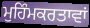
ਮੁਹਿੰਮਕਰਤਾਵਾਂ